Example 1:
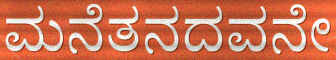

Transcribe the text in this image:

ಮನೆತನದವನೇ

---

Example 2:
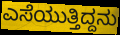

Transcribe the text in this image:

ಎಸೆಯುತ್ತಿದ್ದನು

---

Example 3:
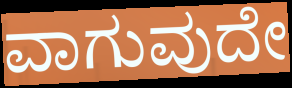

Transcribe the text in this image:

ವಾಗುವುದೇ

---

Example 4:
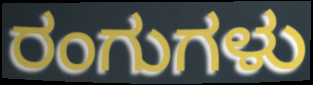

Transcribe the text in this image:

ರಂಗುಗಳು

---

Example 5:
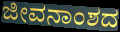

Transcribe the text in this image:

ಜೀವನಾಂಶದ